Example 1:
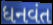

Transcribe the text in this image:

ધનવંત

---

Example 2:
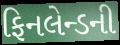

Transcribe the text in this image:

ફિનલેન્ડની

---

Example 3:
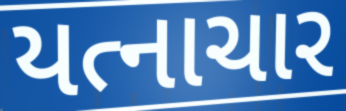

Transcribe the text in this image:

યત્નાચાર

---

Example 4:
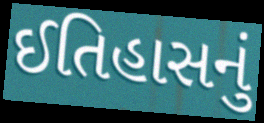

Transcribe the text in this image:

ઈતિહાસનું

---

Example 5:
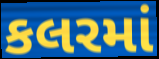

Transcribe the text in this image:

કલરમાં